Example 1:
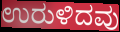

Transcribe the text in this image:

ಉರುಳಿದವು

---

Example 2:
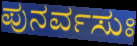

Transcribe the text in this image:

ಪುನರ್ವಸುಃ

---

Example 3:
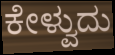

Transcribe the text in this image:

ಕೇಳ್ವುದು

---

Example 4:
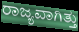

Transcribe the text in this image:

ರಾಜ್ಯವಾಗಿತ್ತು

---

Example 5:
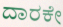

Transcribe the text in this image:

ದಾರಕೇ